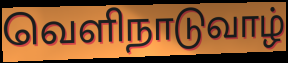
வெளிநாடுவாழ்